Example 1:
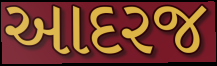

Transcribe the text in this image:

આદરજ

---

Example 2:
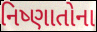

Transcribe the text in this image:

નિષ્ણાતોના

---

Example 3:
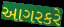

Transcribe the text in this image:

આગરકરે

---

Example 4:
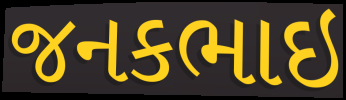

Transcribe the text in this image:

જનકભાઇ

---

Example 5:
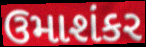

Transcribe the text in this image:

ઉમાશંકર